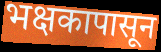
भक्षकापासून